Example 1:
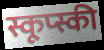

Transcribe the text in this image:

स्कूप्स्की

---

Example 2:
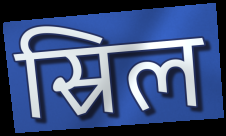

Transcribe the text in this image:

स्रिल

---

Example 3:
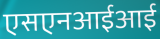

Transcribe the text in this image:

एसएनआईआई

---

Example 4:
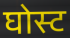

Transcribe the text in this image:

घोस्ट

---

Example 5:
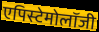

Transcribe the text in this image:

एपिस्टेमोलॉजी